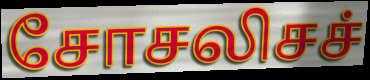
சோசலிசச்